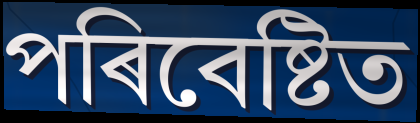
পৰিবেষ্টিত